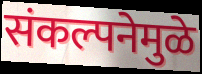
संकल्पनेमुळे